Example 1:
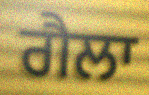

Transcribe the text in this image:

ਗੈਲਾ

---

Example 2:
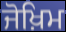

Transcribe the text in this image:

ਜੋਖ਼ਿਮ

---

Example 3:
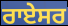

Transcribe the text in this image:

ਰਾਏਸਰ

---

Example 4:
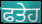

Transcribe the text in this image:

ਫਤੇਹ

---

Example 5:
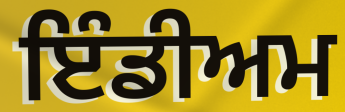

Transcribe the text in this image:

ਇੰਡੀਅਮ